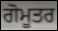
ਗੋਮੂਤਰ